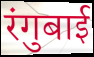
रंगुबाई